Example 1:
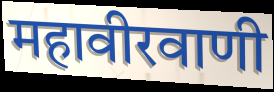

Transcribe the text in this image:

महावीरवाणी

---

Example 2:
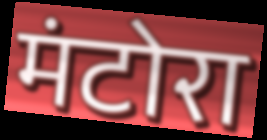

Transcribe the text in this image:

मंटोरा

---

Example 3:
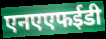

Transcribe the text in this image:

एनएएफईडी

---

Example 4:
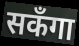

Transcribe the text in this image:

सकँगा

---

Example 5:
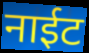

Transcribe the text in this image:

नाईट